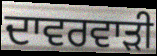
ਦਾਵਰਵਾੜੀ